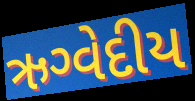
ઋગ્વેદીય